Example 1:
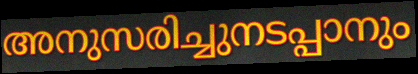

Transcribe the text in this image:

അനുസരിച്ചുനടപ്പാനും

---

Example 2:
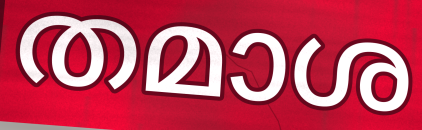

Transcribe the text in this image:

തമാശ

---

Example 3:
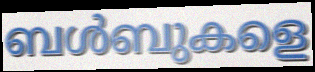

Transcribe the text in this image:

ബൾബുകളെ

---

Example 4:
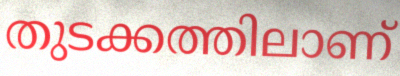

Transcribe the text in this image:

തുടക്കത്തിലാണ്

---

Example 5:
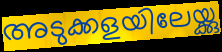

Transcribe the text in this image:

അടുക്കളയിലേയ്ക്കു